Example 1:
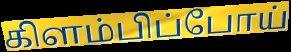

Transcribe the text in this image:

கிளம்பிப்போய்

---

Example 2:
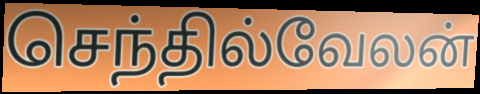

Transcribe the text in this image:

செந்தில்வேலன்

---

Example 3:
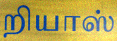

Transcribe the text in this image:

றியாஸ்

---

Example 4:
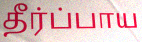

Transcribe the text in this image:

தீர்ப்பாய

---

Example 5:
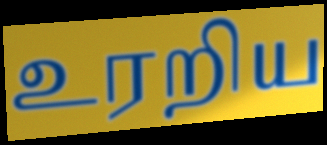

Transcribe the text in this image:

உரறிய